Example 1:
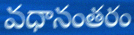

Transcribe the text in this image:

వధానంతరం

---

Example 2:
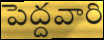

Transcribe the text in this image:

పెద్దవారి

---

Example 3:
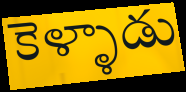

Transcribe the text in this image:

కెళ్ళాడు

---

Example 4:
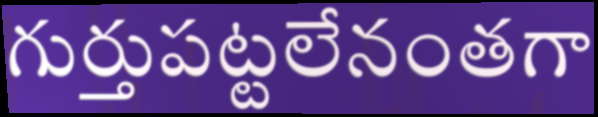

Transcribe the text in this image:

గుర్తుపట్టలేనంతగా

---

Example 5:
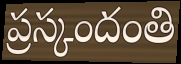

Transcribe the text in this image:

ప్రస్కందంతి